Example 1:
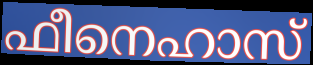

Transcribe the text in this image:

ഫീനെഹാസ്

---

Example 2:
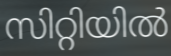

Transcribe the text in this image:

സിറ്റിയിൽ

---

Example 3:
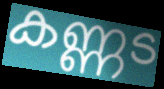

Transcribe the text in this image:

കണ്ണട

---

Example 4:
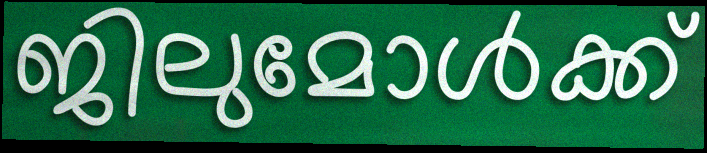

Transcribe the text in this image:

ജിലുമോൾക്ക്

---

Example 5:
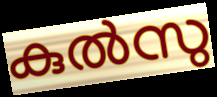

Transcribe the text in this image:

കുൽസു